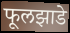
फूलझाडे